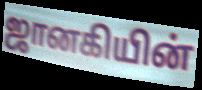
ஜானகியின்